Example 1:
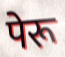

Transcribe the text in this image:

पेरू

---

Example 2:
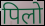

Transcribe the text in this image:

पिलो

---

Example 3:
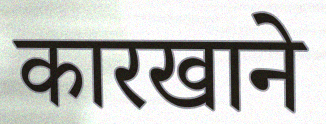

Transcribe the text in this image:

कारखाने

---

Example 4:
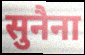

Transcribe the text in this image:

सुनैना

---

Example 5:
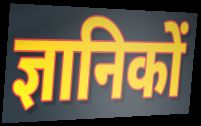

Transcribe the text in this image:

ज्ञानिकों